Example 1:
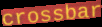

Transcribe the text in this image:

crossbar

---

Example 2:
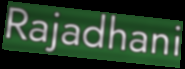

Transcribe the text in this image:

Rajadhani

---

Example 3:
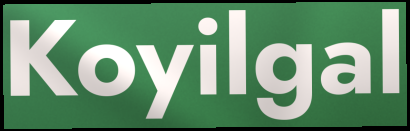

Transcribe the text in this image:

Koyilgal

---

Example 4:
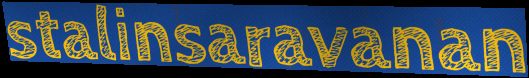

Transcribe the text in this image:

stalinsaravanan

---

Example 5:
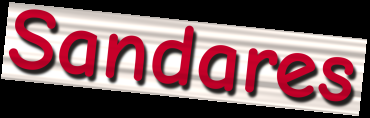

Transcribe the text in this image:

Sandares